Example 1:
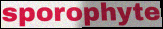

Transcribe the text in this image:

sporophyte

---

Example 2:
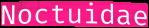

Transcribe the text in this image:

Noctuidae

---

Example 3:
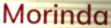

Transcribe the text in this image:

Morinda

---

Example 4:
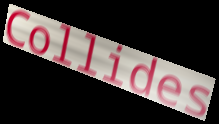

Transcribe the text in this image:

Collides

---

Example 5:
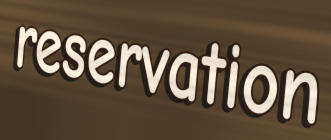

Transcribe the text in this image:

reservation